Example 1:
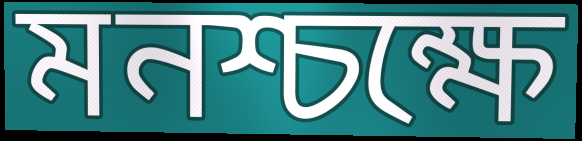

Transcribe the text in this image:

মনশ্চক্ষে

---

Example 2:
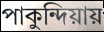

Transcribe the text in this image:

পাকুন্দিয়ায়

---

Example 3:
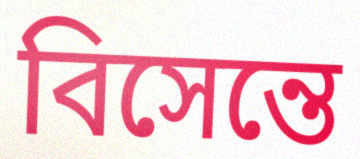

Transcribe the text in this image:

বিসেন্তে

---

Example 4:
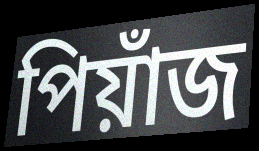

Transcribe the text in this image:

পিয়াঁজ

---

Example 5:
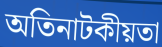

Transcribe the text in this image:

অতিনাটকীয়তা